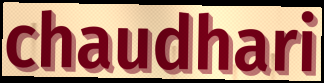
chaudhari